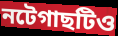
নটেগাছটিও